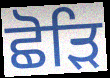
ਛੋੜਿ